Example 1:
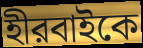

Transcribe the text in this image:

হীরবাইকে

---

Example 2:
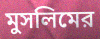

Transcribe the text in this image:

মুসলিমের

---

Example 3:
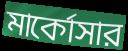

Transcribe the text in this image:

মার্কোসার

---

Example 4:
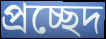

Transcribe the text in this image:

প্রচ্ছেদ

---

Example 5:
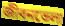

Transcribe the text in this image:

জীবনভেলা